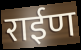
राईण